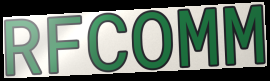
RFCOMM